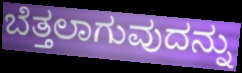
ಬೆತ್ತಲಾಗುವುದನ್ನು